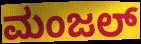
ಮಂಜಲ್